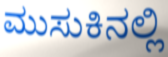
ಮುಸುಕಿನಲ್ಲಿ